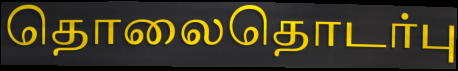
தொலைதொடர்பு